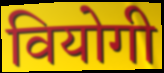
वियोगी